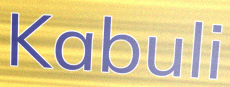
Kabuli